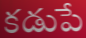
కడుపే